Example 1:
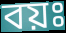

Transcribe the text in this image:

বয়ঃ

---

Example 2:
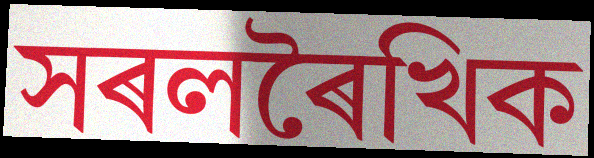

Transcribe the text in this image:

সৰলৰৈখিক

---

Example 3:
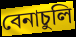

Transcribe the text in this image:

বেনাচুলি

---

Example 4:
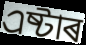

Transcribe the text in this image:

এষ্টাৰ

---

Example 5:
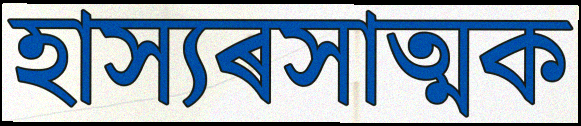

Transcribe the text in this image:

হাস্যৰসাত্মক